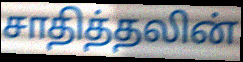
சாதித்தலின்